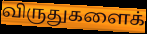
விருதுகளைக்